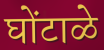
घोंटाळे